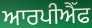
ਆਰਪੀਐੱਫ